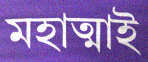
মহাত্মাই